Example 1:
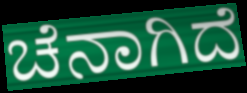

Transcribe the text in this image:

ಚೆನಾಗಿದೆ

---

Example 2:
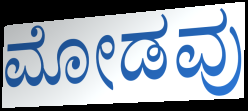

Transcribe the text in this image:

ಮೋಡವು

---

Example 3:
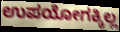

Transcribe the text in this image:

ಉಪಯೋಗಕ್ಕಿಲ್ಲ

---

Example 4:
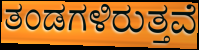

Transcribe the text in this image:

ತಂಡಗಳಿರುತ್ತವೆ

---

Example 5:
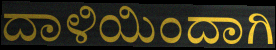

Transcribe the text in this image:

ದಾಳಿಯಿಂದಾಗಿ